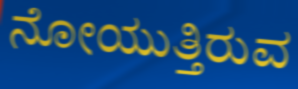
ನೋಯುತ್ತಿರುವ